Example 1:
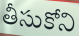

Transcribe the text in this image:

తీసుకోని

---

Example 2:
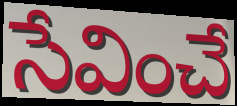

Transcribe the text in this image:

సేవించే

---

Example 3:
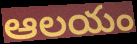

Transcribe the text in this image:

ఆలయం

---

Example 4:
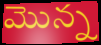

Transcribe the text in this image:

మొన్న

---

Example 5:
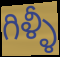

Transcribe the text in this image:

గిళ్ళీ